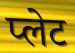
प्लेट